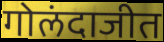
गोलंदाजीत